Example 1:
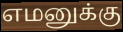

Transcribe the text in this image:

எமனுக்கு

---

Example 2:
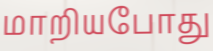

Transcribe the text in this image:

மாறியபோது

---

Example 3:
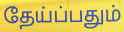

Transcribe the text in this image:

தேய்ப்பதும்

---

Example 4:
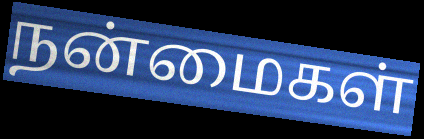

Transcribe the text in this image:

நன்மைகள்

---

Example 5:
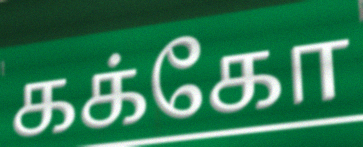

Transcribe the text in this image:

கக்கோ